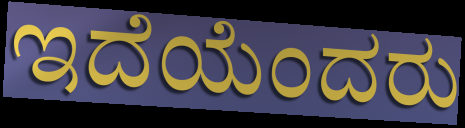
ಇದೆಯೆಂದರು